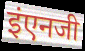
इंएनजी